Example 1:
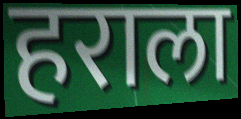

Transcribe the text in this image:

हराला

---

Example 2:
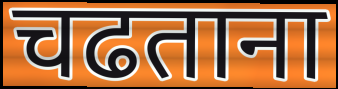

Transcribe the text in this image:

चढताना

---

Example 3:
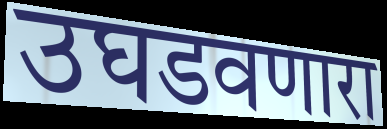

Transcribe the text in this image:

उघडवणारा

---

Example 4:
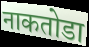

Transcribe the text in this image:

नाकतोडा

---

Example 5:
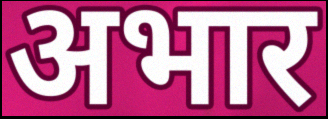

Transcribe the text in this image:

अभार